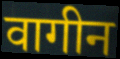
वागीन